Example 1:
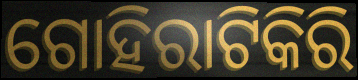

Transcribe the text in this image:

ଗୋହିରାଟିକିରି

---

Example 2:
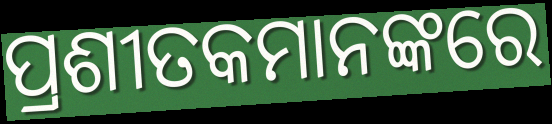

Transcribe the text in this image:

ପ୍ରଶୀତକମାନଙ୍କରେ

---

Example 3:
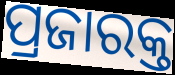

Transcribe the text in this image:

ପ୍ରଜାରକ୍ତ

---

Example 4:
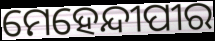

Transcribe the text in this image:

ମେହେନ୍ଦୀପୀର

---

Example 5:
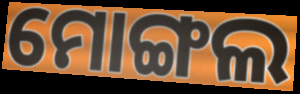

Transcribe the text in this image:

ମୋଙ୍ଗଲ